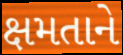
ક્ષમતાને